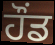
ਹੌਂਡ